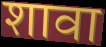
शावा